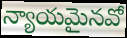
న్యాయమైనవో